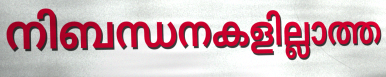
നിബന്ധനകളില്ലാത്ത